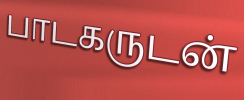
பாடகருடன்